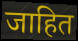
जाहित